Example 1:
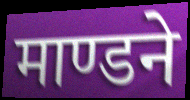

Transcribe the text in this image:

माण्डने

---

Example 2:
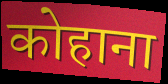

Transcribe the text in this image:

कोहाना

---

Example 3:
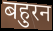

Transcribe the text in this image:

बहुरन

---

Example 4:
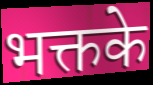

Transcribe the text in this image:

भक्तके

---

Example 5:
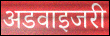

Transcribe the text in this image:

अडवाइजरी